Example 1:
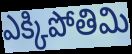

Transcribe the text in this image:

ఎక్కిపోతిమి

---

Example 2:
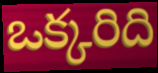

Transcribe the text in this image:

ఒక్కరిది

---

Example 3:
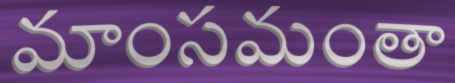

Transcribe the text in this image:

మాంసమంతా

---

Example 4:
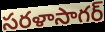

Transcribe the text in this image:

సరళాసాగర్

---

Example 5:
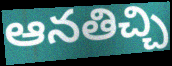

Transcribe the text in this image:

ఆనతిచ్చి